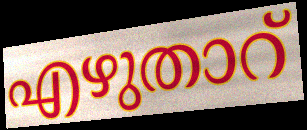
എഴുതാറ്